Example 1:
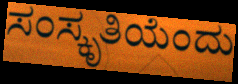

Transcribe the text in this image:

ಸಂಸ್ಕೃತಿಯೆಂದು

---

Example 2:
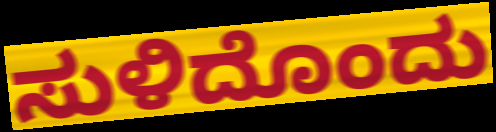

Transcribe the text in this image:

ಸುಳಿದೊಂದು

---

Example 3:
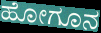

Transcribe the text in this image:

ಹೋಗೂನ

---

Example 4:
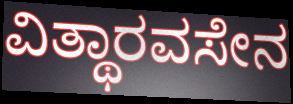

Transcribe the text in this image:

ವಿತ್ಥಾರವಸೇನ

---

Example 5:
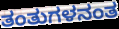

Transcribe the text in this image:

ತಂತುಗಳನಂತ